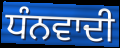
ਧੰਨਵਾਦੀ